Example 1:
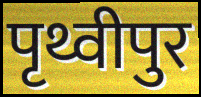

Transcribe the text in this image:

पृथ्वीपुर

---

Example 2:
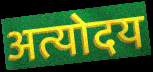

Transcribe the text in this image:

अत्योदय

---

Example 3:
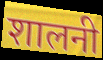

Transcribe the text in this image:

शालनी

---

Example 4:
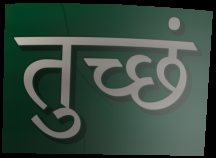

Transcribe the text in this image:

तुच्छं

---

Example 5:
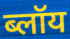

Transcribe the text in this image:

ब्लॉय